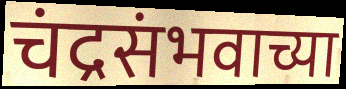
चंद्रसंभवाच्या